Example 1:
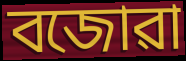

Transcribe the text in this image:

বজোৱা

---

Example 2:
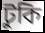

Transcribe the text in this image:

টুকি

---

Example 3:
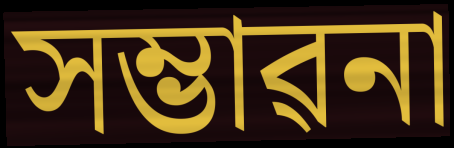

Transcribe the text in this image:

সম্ভাৱনা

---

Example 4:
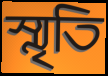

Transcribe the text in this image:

স্মৃতি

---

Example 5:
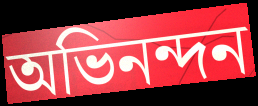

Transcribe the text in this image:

অভিনন্দন